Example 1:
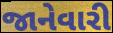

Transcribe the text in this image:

જાનેવારી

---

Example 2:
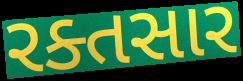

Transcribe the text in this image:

રક્તસાર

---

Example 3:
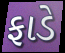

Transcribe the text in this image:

ફાડે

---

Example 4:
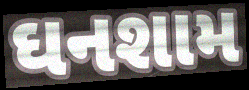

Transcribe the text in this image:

ઘનશામ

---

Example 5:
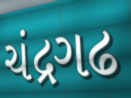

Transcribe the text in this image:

ચંદ્રગઢ